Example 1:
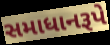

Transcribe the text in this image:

સમાધાનરૂપે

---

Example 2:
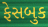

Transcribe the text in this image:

ફેસબુક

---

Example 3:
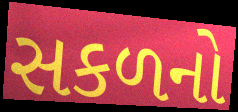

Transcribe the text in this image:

સકળનો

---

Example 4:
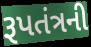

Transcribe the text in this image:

રૂપતંત્રની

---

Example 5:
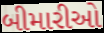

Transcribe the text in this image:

બીમારીઓ